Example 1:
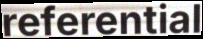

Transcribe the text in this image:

referential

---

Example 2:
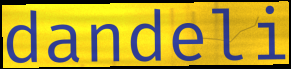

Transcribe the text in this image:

dandeli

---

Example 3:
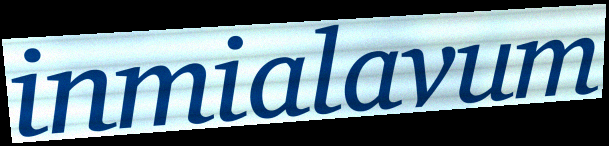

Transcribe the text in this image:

inmialavum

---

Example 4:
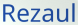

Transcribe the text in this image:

Rezaul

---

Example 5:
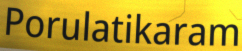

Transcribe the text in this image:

Porulatikaram